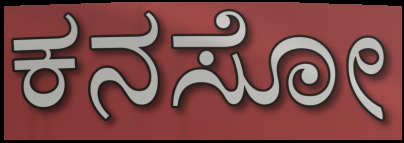
ಕನಸೋ